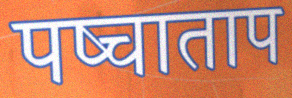
पष्चाताप